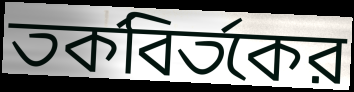
তর্কবির্তকের